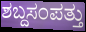
ಶಬ್ದಸಂಪತ್ತು